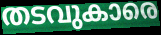
തടവുകാരെ